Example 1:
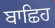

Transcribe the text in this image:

ਬਾਛਿਹ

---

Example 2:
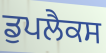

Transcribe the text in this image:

ਡੁਪਲੈਕਸ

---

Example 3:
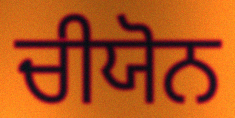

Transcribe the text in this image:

ਚੀਯੋਨ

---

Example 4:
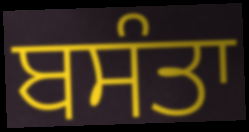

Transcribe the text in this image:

ਬਸੰਤਾ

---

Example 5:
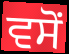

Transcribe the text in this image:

ਵਸੋਂ